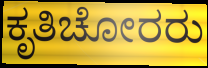
ಕೃತಿಚೋರರು